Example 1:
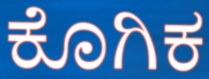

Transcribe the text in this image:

ಕೊಗಿಕ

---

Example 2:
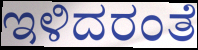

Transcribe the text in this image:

ಇಳಿದರಂತೆ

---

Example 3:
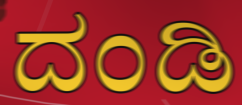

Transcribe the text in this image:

ದಂಡಿ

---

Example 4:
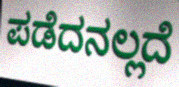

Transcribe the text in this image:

ಪಡೆದನಲ್ಲದೆ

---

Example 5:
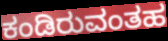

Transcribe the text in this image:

ಕಂಡಿರುವಂತಹ